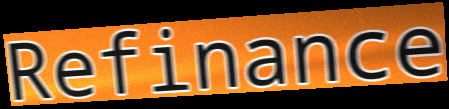
Refinance